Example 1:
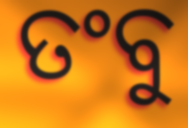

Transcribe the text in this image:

ତଂବୁ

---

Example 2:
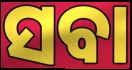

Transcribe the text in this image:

ସବା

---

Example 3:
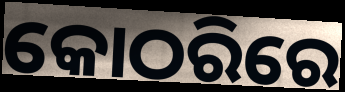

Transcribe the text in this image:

କୋଠରିରେ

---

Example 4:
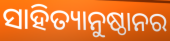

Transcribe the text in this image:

ସାହିତ୍ୟାନୁଷ୍ଠାନର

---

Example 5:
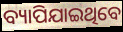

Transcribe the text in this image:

ବ୍ୟାପିଯାଇଥିବେ